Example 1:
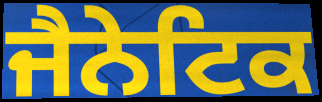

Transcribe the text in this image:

ਜੈਨੇਟਿਕ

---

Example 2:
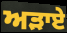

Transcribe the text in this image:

ਅੜਾਏ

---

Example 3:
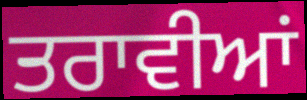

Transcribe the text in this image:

ਤਰਾਵੀਆਂ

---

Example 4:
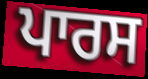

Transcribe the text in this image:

ਪਾਰਸ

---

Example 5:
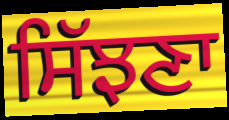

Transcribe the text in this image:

ਸਿੱਝਣਾ